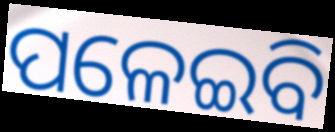
ପଳେଇବି